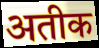
अतीक